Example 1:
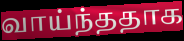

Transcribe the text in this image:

வாய்ந்ததாக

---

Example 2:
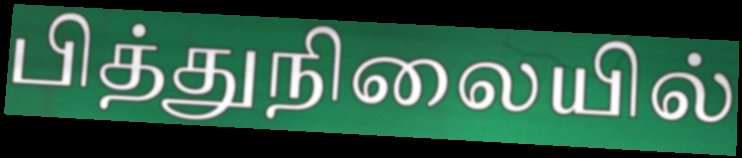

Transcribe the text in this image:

பித்துநிலையில்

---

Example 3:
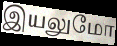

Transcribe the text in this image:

இயலுமோ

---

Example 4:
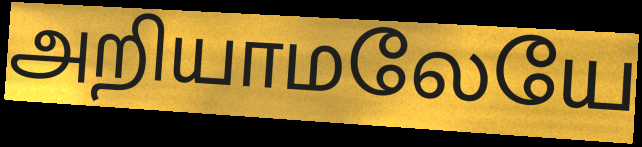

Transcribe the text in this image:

அறியாமலேயே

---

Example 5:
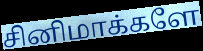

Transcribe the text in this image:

சினிமாக்களே